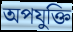
অপযুক্তি